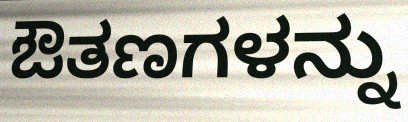
ಔತಣಗಳನ್ನು